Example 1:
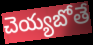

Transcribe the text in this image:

చెయ్యబోతే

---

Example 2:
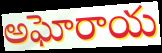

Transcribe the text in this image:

అఘోరాయ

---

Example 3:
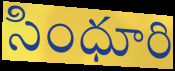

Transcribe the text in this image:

సింధూరి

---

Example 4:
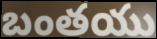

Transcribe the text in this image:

బంతయు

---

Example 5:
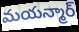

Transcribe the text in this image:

మయన్మార్